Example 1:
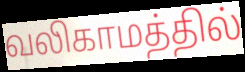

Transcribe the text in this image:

வலிகாமத்தில்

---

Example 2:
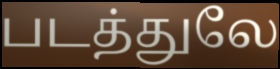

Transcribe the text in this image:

படத்துலே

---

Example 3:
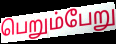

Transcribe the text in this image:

பெறும்பேறு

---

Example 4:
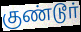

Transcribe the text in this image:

குண்டூர்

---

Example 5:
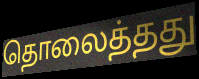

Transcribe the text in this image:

தொலைத்தது